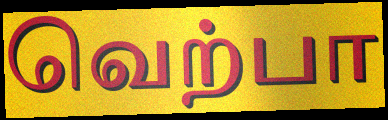
வெற்பா